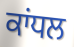
ਕਾਂਧਲ